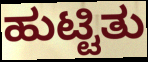
ಹುಟ್ಟಿತು